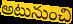
అటునుంచి